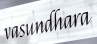
vasundhara